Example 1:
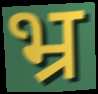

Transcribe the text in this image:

भ्र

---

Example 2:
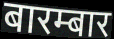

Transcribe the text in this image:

बारम्बार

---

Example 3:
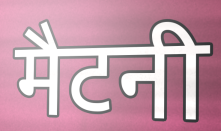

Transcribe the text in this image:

मैटनी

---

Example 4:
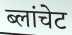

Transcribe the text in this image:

ब्लांचेट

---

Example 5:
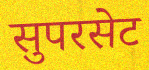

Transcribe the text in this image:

सुपरसेट